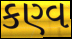
કણ્વ